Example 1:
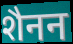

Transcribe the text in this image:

शैनन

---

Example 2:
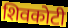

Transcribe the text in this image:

शिवकोटी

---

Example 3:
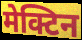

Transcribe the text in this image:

मेक्टिन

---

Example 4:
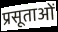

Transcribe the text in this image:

प्रसूताओं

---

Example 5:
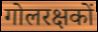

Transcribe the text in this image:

गोलरक्षकों